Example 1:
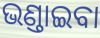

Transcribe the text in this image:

ଭଣ୍ଡାଇବା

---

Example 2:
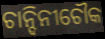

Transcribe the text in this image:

ଚାନ୍ଦିନୀଚୌକ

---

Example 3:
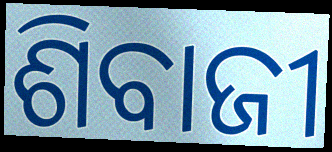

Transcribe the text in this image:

ଶିବାଜୀ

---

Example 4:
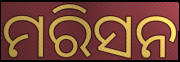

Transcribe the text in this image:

ମରିସନ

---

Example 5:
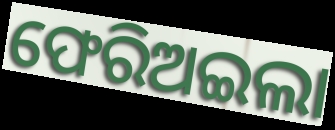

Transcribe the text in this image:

ଫେରିଅଇଲା